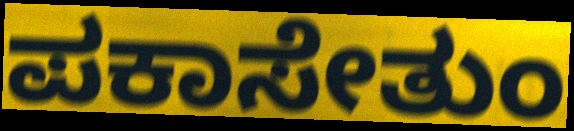
ಪಕಾಸೇತುಂ